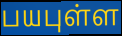
பயபுள்ள